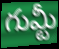
గుమ్టీ